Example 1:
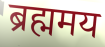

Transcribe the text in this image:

ब्रह्ममय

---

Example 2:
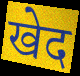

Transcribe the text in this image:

खेद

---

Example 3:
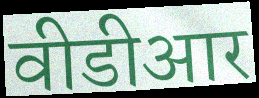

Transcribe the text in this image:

वीडीआर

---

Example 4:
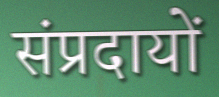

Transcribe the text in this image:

संप्रदायों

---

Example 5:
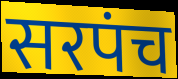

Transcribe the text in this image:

सरपंच